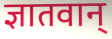
ज्ञातवान्